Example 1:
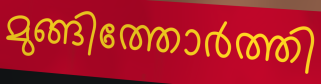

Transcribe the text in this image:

മുങ്ങിത്തോർത്തി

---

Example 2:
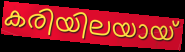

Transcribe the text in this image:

കരിയിലയായ്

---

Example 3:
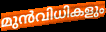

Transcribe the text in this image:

മുൻവിധികളും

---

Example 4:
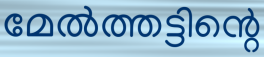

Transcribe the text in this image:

മേൽത്തട്ടിന്റെ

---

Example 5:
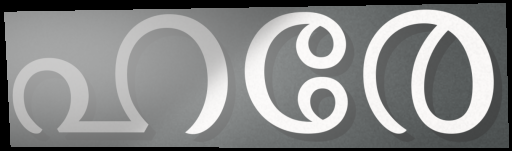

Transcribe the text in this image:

ഹരേ